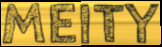
MEITY